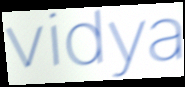
vidya